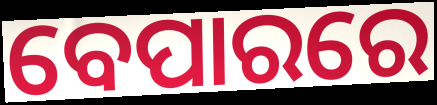
ବେପାରରେ